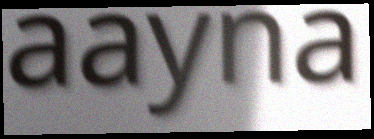
aayna